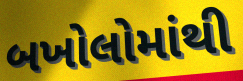
બખોલોમાંથી